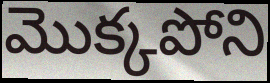
మొక్కపోని